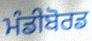
ਮੰਡੀਬੋਰਡ